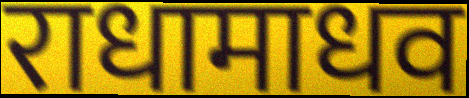
राधामाधव